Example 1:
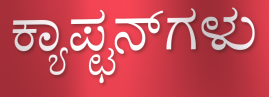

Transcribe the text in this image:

ಕ್ಯಾಪ್ಟನ್‌ಗಳು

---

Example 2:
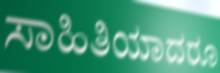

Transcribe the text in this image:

ಸಾಹಿತಿಯಾದರೂ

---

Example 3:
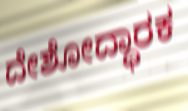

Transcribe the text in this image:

ದೇಶೋದ್ಧಾರಕ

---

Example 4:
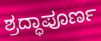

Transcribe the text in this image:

ಶ್ರದ್ಧಾಪೂರ್ಣ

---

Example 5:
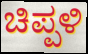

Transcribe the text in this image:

ಚಿಪ್ಪಳಿ